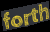
forth